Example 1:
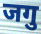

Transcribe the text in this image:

जगु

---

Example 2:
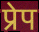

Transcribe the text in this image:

प्रेप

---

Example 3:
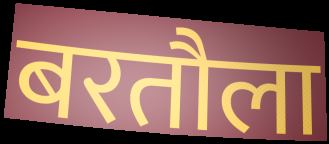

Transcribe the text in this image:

बरतौला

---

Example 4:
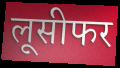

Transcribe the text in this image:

लूसीफर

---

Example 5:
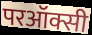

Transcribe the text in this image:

परऑक्सी